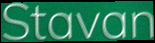
Stavan